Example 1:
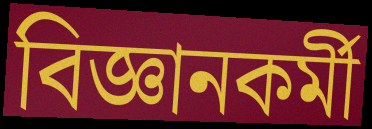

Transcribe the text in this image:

বিজ্ঞানকর্মী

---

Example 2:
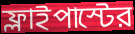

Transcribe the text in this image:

ফ্লাইপাস্টের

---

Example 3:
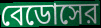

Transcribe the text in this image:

বেডোসের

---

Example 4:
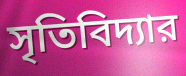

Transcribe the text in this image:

সৃতিবিদ্যার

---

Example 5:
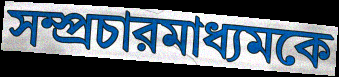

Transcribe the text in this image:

সম্প্রচারমাধ্যমকে